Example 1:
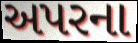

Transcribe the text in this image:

અપરના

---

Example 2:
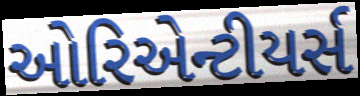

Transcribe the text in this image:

ઓરિએન્ટીયર્સ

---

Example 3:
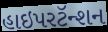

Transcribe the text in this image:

હાઇપરટૅન્શન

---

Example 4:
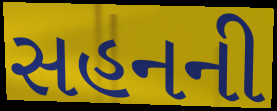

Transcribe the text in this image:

સહનની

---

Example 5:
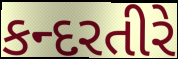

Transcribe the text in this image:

કન્દરતીરે